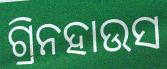
ଗ୍ରିନହାଉସ